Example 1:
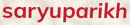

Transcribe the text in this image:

saryuparikh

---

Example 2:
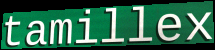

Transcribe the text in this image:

tamillex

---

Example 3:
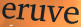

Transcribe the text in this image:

eruve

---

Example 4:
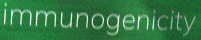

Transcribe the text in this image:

immunogenicity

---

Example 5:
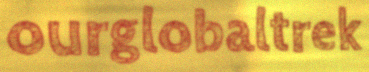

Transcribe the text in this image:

ourglobaltrek